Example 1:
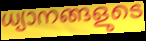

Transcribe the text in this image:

ധ്യാനങ്ങളുടെ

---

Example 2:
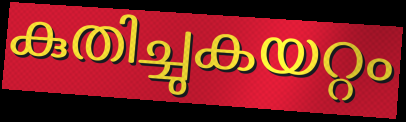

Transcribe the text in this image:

കുതിച്ചുകയറ്റം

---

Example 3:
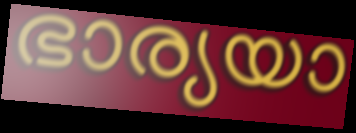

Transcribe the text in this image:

ഭാര്യയാ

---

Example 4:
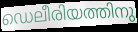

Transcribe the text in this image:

ഡെലീരിയത്തിനു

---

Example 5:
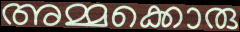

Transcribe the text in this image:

അമ്മക്കൊരു